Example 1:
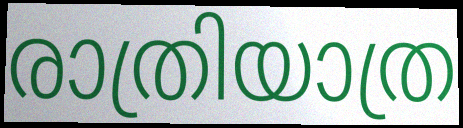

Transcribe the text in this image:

രാത്രിയാത്ര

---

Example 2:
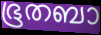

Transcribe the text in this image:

ഭൂതബാ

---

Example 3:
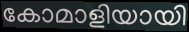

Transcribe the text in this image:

കോമാളിയായി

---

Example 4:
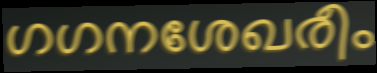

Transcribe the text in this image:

ഗഗനശേഖരീം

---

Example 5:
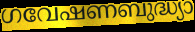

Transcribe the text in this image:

ഗവേഷണബുദ്ധ്യാ